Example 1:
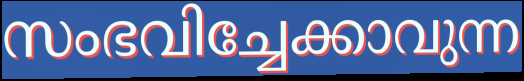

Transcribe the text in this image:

സംഭവിച്ചേക്കാവുന്ന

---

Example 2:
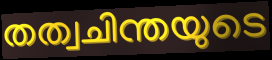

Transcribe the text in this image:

തത്വചിന്തയുടെ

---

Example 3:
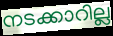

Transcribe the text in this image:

നടക്കാറില്ല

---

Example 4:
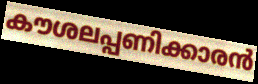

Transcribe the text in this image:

കൗശലപ്പണിക്കാരൻ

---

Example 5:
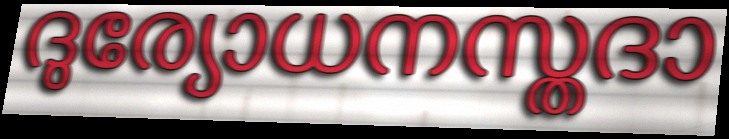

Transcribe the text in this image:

ദുര്യോധനസ്തദാ